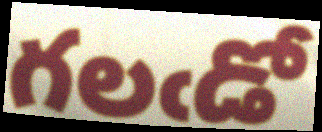
గలఁడో